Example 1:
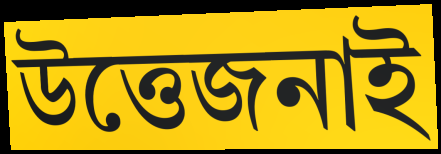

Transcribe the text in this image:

উত্তেজনাই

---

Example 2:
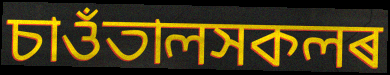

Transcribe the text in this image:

চাওঁতালসকলৰ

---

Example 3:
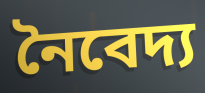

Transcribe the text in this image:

নৈবেদ্য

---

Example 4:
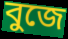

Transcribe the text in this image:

বুজে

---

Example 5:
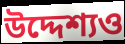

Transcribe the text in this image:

উদ্দেশ্যও